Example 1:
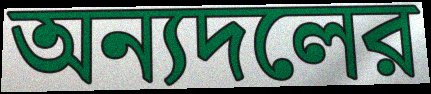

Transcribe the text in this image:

অন্যদলের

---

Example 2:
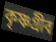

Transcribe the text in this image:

কৃষ্ণগ্রীব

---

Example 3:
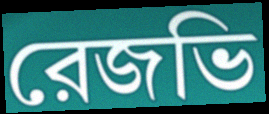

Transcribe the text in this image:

রেজভি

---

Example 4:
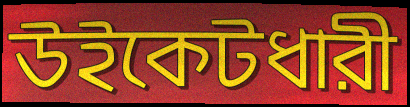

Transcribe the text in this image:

উইকেটধারী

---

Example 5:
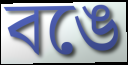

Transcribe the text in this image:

বঙে